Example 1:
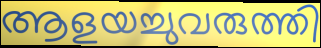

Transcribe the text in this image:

ആളയച്ചുവരുത്തി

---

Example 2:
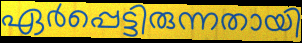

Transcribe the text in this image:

ഏർപ്പെട്ടിരുന്നതായി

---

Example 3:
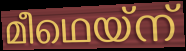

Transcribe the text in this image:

മീഥെയ്ന്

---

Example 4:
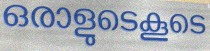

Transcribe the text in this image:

ഒരാളുടെകൂടെ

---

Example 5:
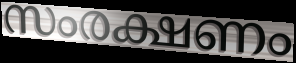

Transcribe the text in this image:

സംരക്ഷണം